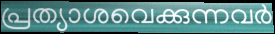
പ്രത്യാശവെക്കുന്നവർ